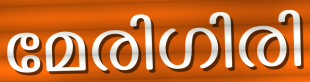
മേരിഗിരി